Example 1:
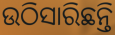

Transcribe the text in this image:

ଉଠିସାରିଛନ୍ତି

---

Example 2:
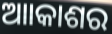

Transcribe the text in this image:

ଆାକାଶର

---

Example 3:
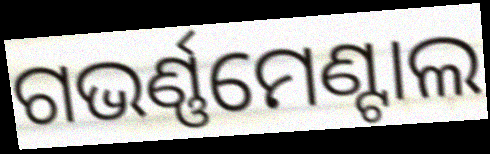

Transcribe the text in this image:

ଗଭର୍ଣ୍ଣମେଣ୍ଟାଲ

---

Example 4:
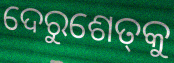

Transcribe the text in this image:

ଦେରୁଶେତ୍‌କୁ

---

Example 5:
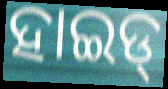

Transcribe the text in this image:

ହାଇଡ୍